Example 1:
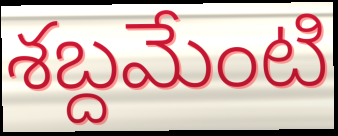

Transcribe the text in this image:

శబ్దమేంటి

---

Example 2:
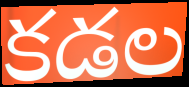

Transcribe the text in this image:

కడల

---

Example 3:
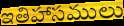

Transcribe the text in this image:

ఇతిహాసములు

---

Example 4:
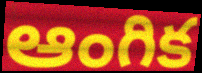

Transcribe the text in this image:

ఆంగిక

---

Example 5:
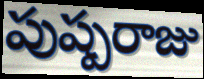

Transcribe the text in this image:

పుష్పరాజు